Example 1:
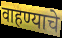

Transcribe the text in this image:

वाहण्याचे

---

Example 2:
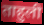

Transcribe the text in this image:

ताहुली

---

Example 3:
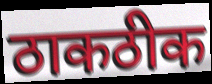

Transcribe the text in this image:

ठाकठीक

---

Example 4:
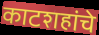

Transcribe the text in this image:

काटशहांचे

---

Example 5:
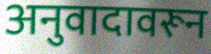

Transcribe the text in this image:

अनुवादावरून